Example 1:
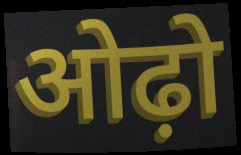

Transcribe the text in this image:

ओढ़ो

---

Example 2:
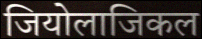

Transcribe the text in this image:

जियोलाजिकल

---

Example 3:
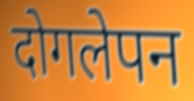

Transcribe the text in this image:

दोगलेपन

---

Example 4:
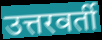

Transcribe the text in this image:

उत्तरवर्ती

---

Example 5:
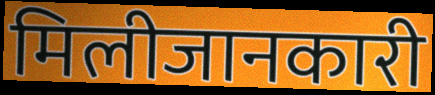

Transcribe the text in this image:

मिलीजानकारी